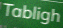
Tabligh